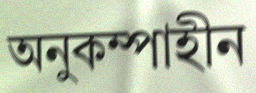
অনুকম্পাহীন